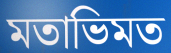
মতাভিমত